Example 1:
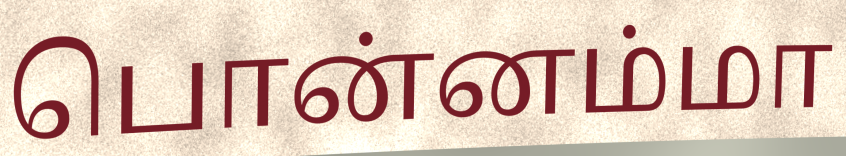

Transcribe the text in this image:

பொன்னம்மா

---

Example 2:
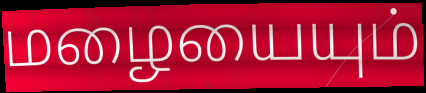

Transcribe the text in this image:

மழையையும்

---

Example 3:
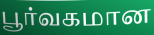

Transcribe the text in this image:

பூர்வகமான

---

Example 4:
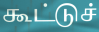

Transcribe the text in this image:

கூட்டுச்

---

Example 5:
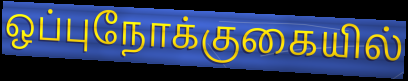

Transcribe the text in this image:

ஒப்புநோக்குகையில்